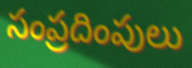
సంప్రదింపులు